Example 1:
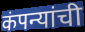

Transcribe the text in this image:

कंपन्यांची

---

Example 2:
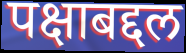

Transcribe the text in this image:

पक्षाबद्दल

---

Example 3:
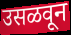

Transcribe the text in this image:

उसळवून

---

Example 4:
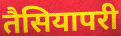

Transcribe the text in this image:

तैसियापरी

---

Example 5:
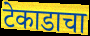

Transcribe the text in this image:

टेकाडाचा